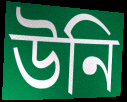
উনি